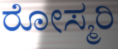
ರೋಸ್ಮರಿ